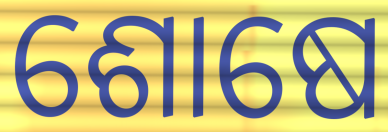
ଶୋଷେ